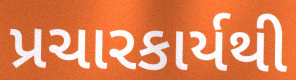
પ્રચારકાર્યથી